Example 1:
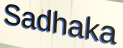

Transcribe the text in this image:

Sadhaka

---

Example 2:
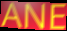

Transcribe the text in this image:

ANE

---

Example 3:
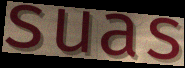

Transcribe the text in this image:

suas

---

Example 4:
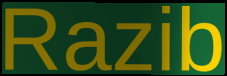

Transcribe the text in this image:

Razib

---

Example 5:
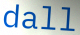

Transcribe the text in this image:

dall